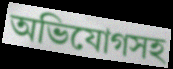
অভিযোগসহ